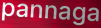
pannaga